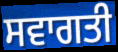
ਸਵਾਗਤੀ